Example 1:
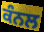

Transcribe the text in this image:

ਕੰਨਲ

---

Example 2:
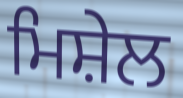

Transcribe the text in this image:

ਮਿਸ਼ੇਲ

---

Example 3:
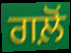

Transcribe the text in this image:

ਗਲ਼ੋਂ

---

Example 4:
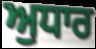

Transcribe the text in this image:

ਅੁਧਾਰ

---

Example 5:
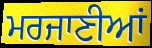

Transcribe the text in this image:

ਮਰਜਾਣੀਆਂ